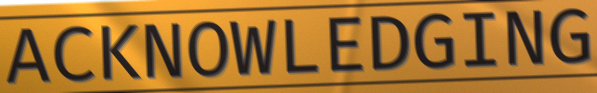
ACKNOWLEDGING